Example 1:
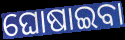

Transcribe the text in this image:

ଘୋଷାଇବା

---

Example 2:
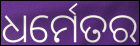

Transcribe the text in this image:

ଧର୍ମେତର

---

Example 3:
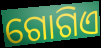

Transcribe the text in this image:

ଗୋଗିଏ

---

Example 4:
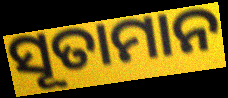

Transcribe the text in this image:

ସୂତାମାନ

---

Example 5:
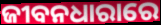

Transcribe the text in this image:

ଜୀବନଧାରାରେ